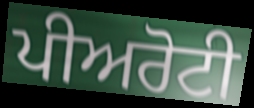
ਪੀਅਰੋਟੀ